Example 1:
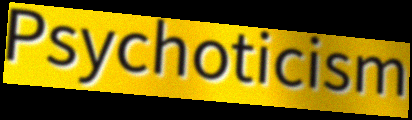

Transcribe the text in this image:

Psychoticism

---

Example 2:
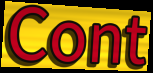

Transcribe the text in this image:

Cont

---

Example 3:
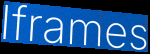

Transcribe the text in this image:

Iframes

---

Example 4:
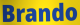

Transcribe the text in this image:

Brando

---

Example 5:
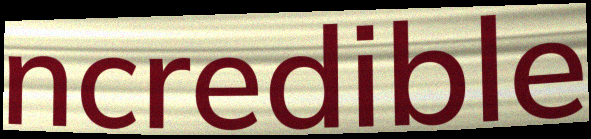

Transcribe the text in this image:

ncredible